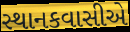
સ્થાનકવાસીએ